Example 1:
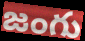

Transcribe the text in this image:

జంగు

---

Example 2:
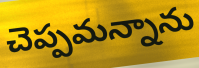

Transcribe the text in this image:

చెప్పమన్నాను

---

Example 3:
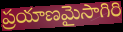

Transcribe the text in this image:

ప్రయాణమైసాగిరి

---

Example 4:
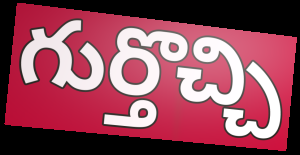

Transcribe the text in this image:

గుర్తొచ్చి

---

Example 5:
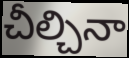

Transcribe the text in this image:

చీల్చినా